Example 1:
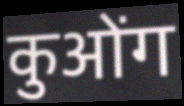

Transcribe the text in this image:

कुओंग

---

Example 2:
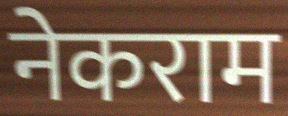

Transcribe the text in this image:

नेकराम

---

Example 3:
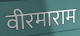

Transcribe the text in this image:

वीरमाराम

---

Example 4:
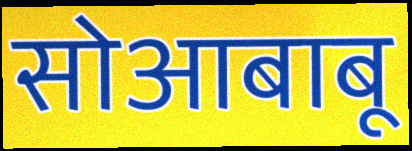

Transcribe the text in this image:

सोआबाबू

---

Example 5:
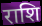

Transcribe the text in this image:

राशि